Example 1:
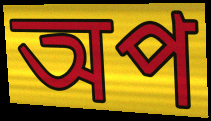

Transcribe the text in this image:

অপ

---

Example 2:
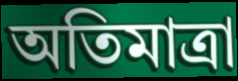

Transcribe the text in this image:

অতিমাত্ৰা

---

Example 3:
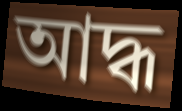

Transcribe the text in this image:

আদ্ধ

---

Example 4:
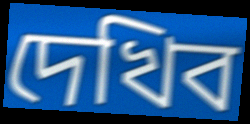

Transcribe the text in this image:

দেখিব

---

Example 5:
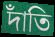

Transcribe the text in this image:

দাঁতি